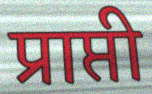
प्राप्ती